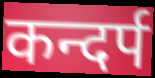
कन्दर्प